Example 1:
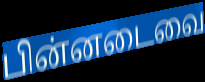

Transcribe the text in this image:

பின்னடைவை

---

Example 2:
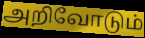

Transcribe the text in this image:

அறிவோடும்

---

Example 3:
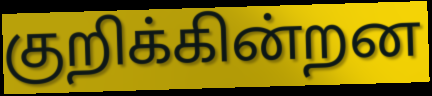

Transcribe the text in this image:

குறிக்கின்றன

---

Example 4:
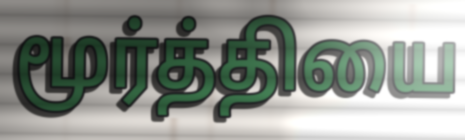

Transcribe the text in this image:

மூர்த்தியை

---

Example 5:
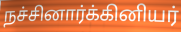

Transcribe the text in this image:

நச்சினார்க்கினியர்